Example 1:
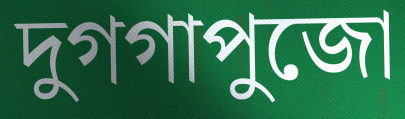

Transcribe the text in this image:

দুগগাপুজো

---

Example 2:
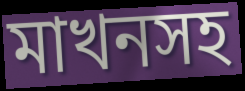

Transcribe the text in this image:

মাখনসহ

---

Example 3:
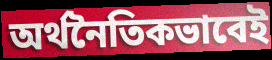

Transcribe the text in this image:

অর্থনৈতিকভাবেই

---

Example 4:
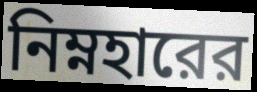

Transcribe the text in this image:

নিম্নহারের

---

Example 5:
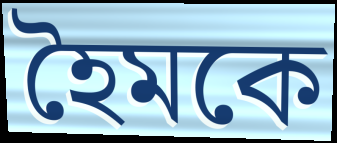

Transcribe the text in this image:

হৈমকে